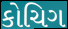
કોચિગ